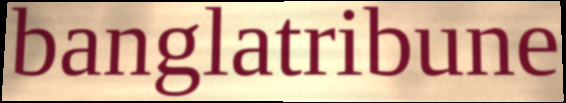
banglatribune